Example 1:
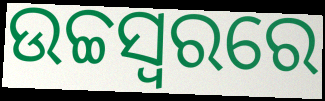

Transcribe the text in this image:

ଉଚ୍ଚସ୍ଵରରେ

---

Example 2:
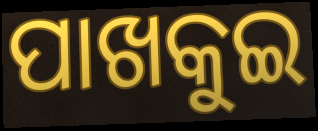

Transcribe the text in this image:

ପାଖକୁଇ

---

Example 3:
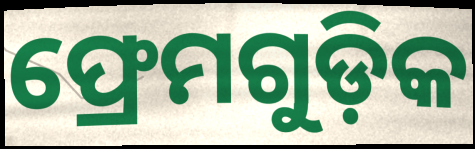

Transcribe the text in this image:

ଫ୍ରେମଗୁଡ଼ିକ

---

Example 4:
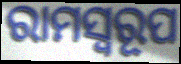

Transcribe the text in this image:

ରାମସ୍ୱରୂପ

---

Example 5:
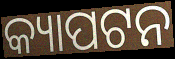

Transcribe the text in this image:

କ୍ୟାପଟନ